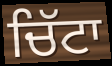
ਚਿੱਟਾ